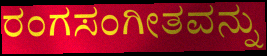
ರಂಗಸಂಗೀತವನ್ನು